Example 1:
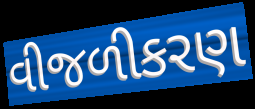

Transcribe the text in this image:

વીજળીકરણ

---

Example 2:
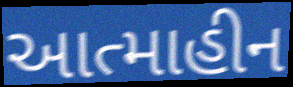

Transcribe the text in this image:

આત્માહીન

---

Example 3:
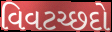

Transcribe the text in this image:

વિવટચ્છદો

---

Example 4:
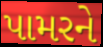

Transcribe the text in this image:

પામરને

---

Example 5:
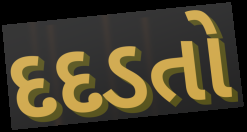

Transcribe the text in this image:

દદડતો